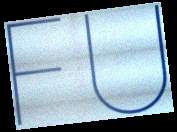
FU